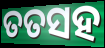
ତତସହ